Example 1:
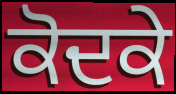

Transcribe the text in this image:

ਕੋਦਕੇ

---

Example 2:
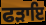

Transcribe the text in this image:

ਫੜਾਇ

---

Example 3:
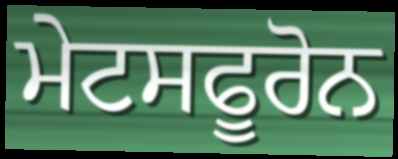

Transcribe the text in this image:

ਮੇਟਸਫੂਰੋਨ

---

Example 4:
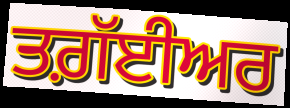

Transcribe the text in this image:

ਤਗ਼ੱਈਅਰ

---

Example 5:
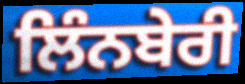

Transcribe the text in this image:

ਲਿੰਨਬੇਰੀ